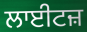
ਲਾਈਟਜ਼